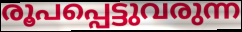
രൂപപ്പെട്ടുവരുന്ന